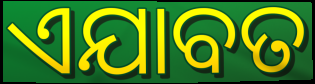
ଏଯାବତ